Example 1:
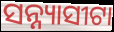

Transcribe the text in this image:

ସନ୍ନ୍ୟାସୀଟା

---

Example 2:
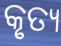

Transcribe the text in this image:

କୃତ୍ଯ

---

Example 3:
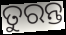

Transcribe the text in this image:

ତୁରନ୍ତ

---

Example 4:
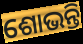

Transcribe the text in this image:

ଶୋଭନ୍ତି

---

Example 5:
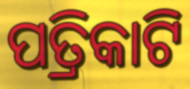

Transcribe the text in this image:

ପତ୍ରିକାଟି